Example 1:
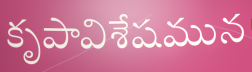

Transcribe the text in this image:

కృపావిశేషమున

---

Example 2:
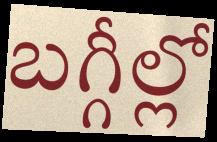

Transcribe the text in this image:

బగ్గీల్లో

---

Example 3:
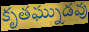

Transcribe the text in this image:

కృతఘ్నుడవు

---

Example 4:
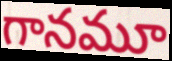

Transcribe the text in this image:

గానమూ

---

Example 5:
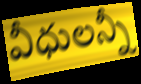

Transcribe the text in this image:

వీధులన్నీ